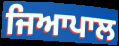
ਜਿਆਪਾਲ